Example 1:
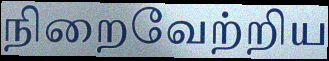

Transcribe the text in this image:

நிறைவேற்றிய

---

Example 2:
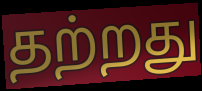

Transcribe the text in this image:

தற்றது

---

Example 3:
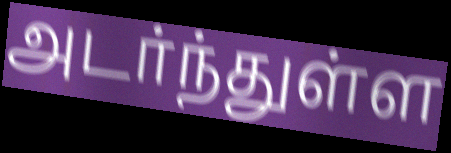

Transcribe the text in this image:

அடர்ந்துள்ள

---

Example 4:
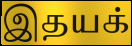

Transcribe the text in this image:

இதயக்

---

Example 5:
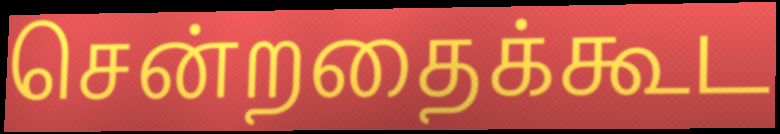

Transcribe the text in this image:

சென்றதைக்கூட